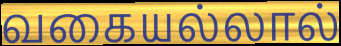
வகையல்லால்